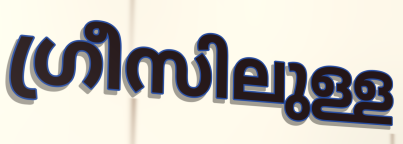
ഗ്രീസിലുള്ള